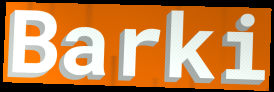
Barki